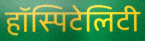
हॉस्पिटेलिटी